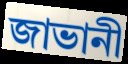
জাভানী